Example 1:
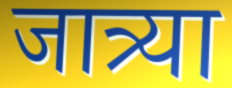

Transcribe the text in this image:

जात्र्या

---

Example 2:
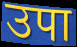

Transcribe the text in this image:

उपा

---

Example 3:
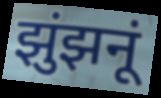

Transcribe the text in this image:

झुंझनूं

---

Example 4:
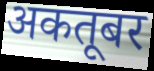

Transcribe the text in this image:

अकतूबर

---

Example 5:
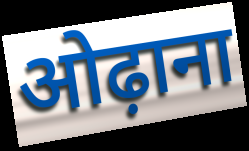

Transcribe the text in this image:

ओढ़ाना